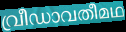
വ്രീഡാവതീമഥ